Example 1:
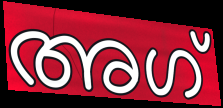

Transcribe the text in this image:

അഗ്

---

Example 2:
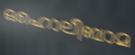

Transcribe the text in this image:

ഒഹൊലീബാമ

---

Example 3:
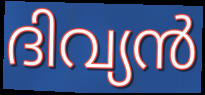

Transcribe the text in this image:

ദിവ്യൻ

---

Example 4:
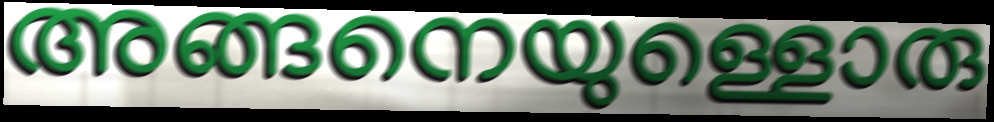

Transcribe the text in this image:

അങ്ങനെയുള്ളൊരു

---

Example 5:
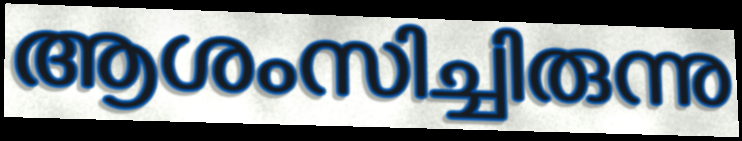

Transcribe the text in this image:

ആശംസിച്ചിരുന്നു